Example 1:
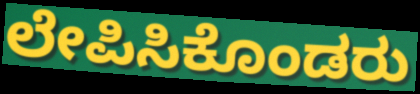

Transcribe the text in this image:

ಲೇಪಿಸಿಕೊಂಡರು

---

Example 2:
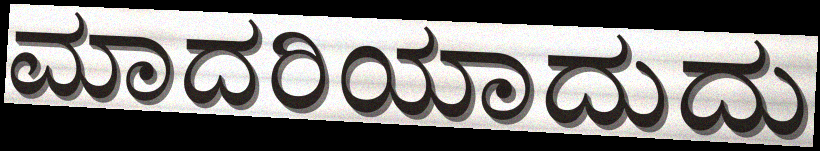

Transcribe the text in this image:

ಮಾದರಿಯಾದುದು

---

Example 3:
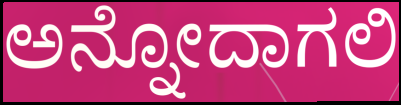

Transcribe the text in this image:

ಅನ್ನೋದಾಗಲಿ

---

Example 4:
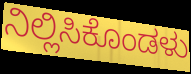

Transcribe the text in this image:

ನಿಲ್ಲಿಸಿಕೊಂಡಳು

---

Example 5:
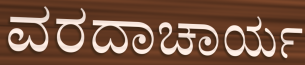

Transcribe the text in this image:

ವರದಾಚಾರ್ಯ